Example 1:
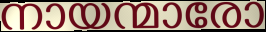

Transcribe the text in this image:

നായന്മാരോ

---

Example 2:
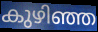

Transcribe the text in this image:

കുഴിഞ്ഞ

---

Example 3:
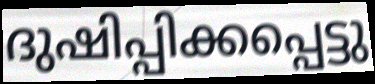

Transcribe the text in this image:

ദുഷിപ്പിക്കപ്പെട്ടു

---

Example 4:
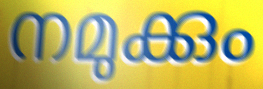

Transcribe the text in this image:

നമുക്കും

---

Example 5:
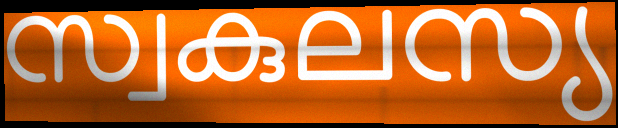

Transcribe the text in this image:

സ്വകുലസ്യ